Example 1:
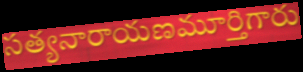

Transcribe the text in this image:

సత్యనారాయణమూర్తిగారు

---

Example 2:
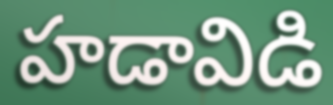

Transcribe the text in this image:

హడావిడి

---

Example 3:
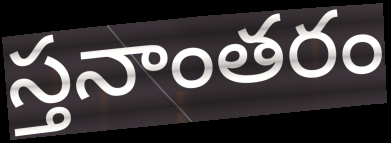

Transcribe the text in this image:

స్తనాంతరం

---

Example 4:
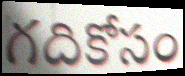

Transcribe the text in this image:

గదికోసం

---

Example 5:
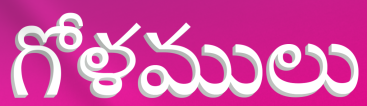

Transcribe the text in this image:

గోళములు